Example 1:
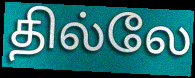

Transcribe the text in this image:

தில்லே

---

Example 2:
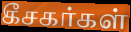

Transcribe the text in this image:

கீசகர்கள்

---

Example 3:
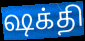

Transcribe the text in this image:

ஷக்தி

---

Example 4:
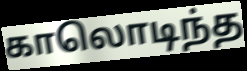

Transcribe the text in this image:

காலொடிந்த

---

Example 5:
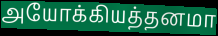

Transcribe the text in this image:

அயோக்கியத்தனமா